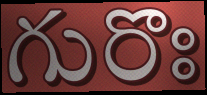
గురొః